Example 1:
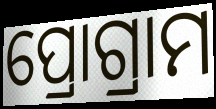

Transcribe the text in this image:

ପ୍ରୋଗ୍ରାମ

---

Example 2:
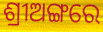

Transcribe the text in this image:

ଶ୍ରୀଅଙ୍ଗରେ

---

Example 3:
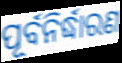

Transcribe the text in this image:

ପୂର୍ବନିର୍ଦ୍ଧାରଣ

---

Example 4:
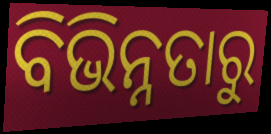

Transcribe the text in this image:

ବିଭିନ୍ନତାରୁ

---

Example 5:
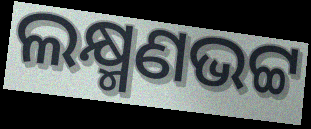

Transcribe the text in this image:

ଲକ୍ଷ୍ମଣଭଟ୍ଟ